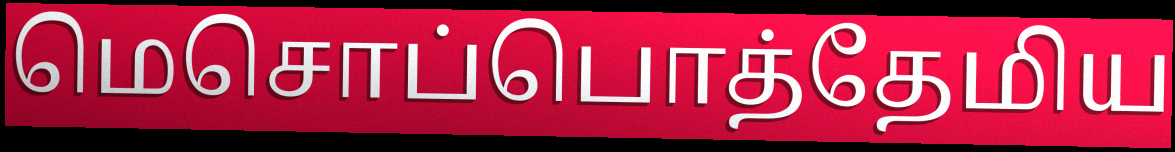
மெசொப்பொத்தேமிய